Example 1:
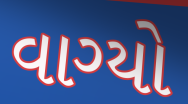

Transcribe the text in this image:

વાગ્યો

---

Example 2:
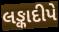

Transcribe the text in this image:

લઙ્કાદીપે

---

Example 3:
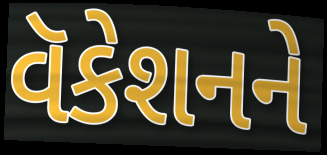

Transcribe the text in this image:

વૅકેશનને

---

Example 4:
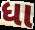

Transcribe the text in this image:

ધા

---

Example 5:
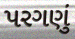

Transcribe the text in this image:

પરગણું